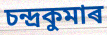
চন্দ্ৰকুমাৰ